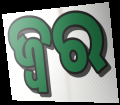
ଜ୍ଵର